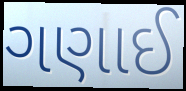
ગણાઈ